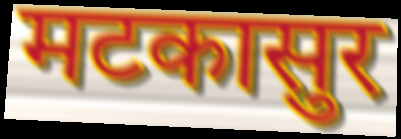
मटकासुर